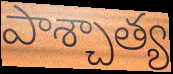
పాశ్చాత్య